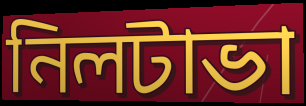
নিলটাভা